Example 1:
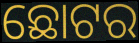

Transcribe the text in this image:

ଛୋଟର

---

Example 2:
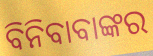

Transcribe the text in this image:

ବିନିବାବାଙ୍କର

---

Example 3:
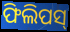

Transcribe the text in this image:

ଫିଲିପସ୍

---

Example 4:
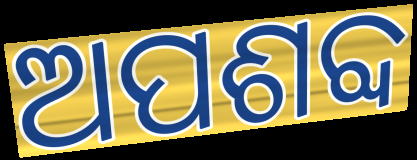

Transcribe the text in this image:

ଅପଶବ୍ଦ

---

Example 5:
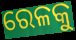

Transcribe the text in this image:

ରେଳକୁ